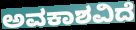
ಅವಕಾಶವಿದೆ